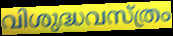
വിശുദ്ധവസ്ത്രം